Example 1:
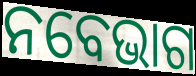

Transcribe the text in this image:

ନବେଭାଗ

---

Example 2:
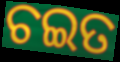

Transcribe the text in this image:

ଚଇତ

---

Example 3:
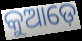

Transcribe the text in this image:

କୁଆଡ଼େ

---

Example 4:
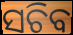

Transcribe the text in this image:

ସଚିବ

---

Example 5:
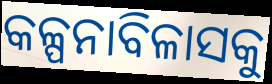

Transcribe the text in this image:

କଳ୍ପନାବିଳାସକୁ